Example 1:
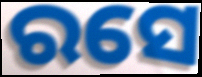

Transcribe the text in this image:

ରସେ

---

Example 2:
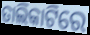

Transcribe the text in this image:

ତାଲିକାଟିରେ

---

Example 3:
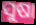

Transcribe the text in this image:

ସୁଷା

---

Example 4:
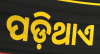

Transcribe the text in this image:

ପଡ଼ିଥାଏ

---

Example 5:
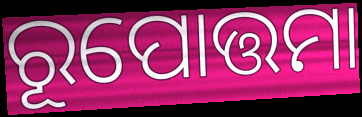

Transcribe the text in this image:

ରୂପୋତ୍ତମା